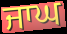
ਜਾਘ